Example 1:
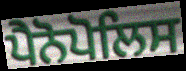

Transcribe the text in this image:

ਪੈਨੋਪੋਲਿਸ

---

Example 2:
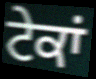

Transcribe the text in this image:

ਟੇਕਾਂ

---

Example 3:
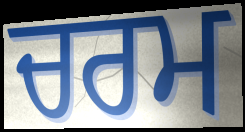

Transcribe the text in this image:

ਚਰਮ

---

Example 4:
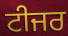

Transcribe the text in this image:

ਟੀਜਰ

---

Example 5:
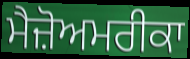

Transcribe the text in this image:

ਮੈਜ਼ੋਅਮਰੀਕਾ